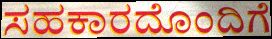
ಸಹಕಾರದೊಂದಿಗೆ